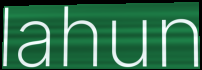
lahun